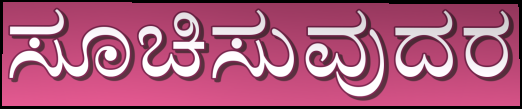
ಸೂಚಿಸುವುದರ